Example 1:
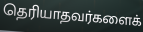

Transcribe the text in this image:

தெரியாதவர்களைக்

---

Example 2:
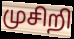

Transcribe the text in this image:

முசிறி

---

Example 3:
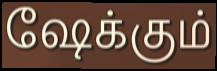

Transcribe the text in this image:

ஷேக்கும்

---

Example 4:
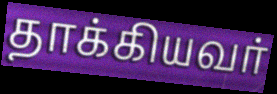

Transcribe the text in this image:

தாக்கியவர்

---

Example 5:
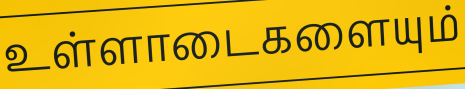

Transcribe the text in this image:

உள்ளாடைகளையும்